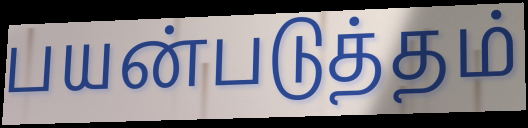
பயன்படுத்தம்